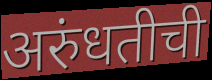
अरुंधतीची